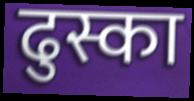
ढुस्का